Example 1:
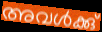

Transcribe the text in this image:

അവൾക്കു്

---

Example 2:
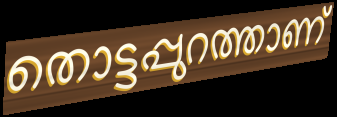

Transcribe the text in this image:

തൊട്ടപ്പുറത്താണ്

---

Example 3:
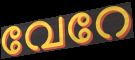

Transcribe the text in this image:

വേറേ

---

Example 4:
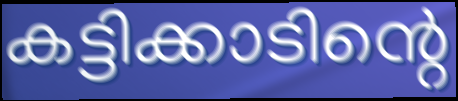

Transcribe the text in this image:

കട്ടിക്കാടിന്റെ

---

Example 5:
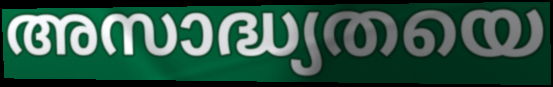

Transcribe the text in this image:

അസാദ്ധ്യതയെ